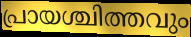
പ്രായശ്ചിത്തവും